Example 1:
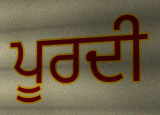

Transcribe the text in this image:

ਪੂਰਦੀ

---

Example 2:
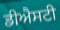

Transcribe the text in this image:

ਡੀਐਸਟੀ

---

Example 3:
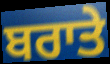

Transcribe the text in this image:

ਬਰਾਤੇ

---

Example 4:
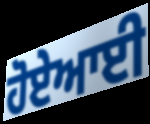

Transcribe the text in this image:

ਹੋਏਆਈ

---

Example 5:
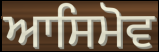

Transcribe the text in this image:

ਆਸਿਮੋਵ